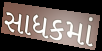
સાધકમાં